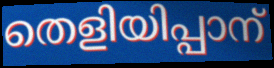
തെളിയിപ്പാന്